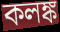
কলঙ্ক